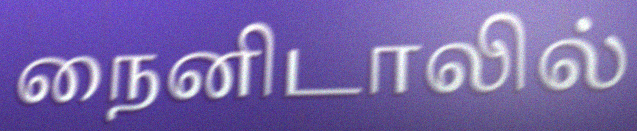
நைனிடாலில்